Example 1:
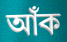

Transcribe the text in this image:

আঁক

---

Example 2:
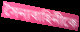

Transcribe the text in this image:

সৈন্যবাহিনীকে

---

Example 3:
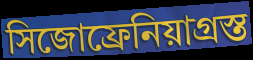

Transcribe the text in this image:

সিজোফ্রেনিয়াগ্রস্ত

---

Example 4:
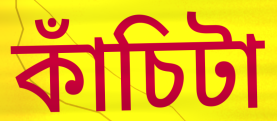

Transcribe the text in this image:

কাঁচিটা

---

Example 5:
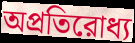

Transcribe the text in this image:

অপ্রতিরোধ্য